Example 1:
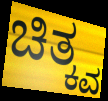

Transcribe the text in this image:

ಚಿತ್ಕ್ವ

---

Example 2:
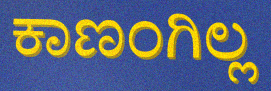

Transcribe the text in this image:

ಕಾಣಂಗಿಲ್ಲ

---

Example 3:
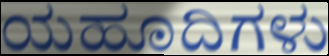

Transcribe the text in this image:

ಯಹೂದಿಗಳು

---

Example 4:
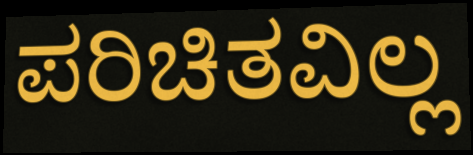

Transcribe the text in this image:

ಪರಿಚಿತವಿಲ್ಲ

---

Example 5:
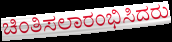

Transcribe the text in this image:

ಚಿಂತಿಸಲಾರಂಭಿಸಿದರು